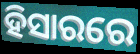
ହିସାରରେ